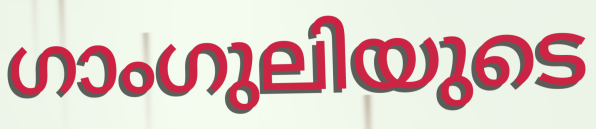
ഗാംഗുലിയുടെ